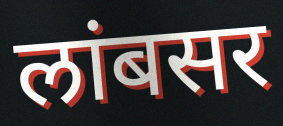
लांबसर